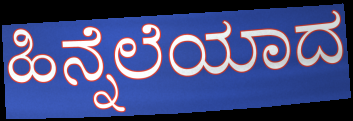
ಹಿನ್ನೆಲೆಯಾದ